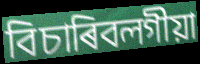
বিচাৰিবলগীয়া